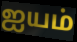
ஐயம்